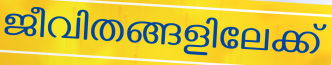
ജീവിതങ്ങളിലേക്ക്